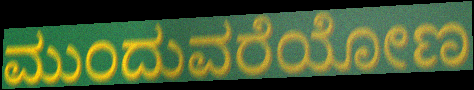
ಮುಂದುವರೆಯೋಣ